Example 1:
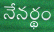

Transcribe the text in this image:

నేనర్థం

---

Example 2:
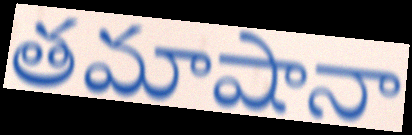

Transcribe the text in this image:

తమాషానా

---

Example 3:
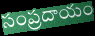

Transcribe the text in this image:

సంప్రదాయం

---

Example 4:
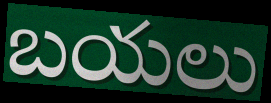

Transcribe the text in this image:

బయలు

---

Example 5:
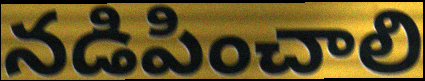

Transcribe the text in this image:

నడిపించాలి